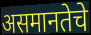
असमानतेचे